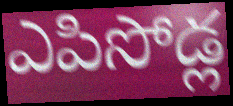
ఎపిసోడ్ల